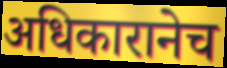
अधिकारानेच